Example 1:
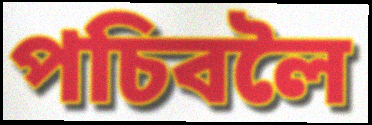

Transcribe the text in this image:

পচিবলৈ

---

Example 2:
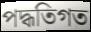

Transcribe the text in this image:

পদ্ধতিগত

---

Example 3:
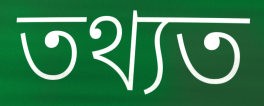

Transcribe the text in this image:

তথ্যত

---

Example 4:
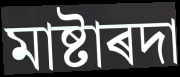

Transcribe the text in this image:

মাষ্টাৰদা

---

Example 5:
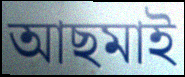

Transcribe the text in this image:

আছমাই